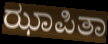
ಝಾಪಿತಾ